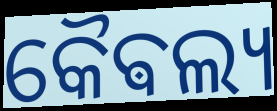
କୈଵଲ୍ୟ